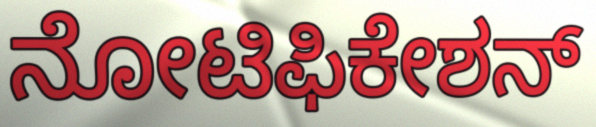
ನೋಟಿಫಿಕೇಶನ್